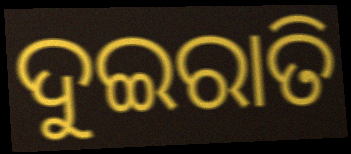
ଦୁଇରାତି